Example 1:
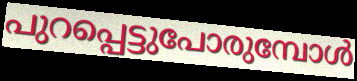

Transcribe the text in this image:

പുറപ്പെട്ടുപോരുമ്പോൾ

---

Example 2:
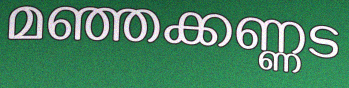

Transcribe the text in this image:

മഞ്ഞക്കണ്ണട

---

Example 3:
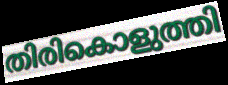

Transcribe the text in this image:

തിരികൊളുത്തി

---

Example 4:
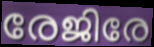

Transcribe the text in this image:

രേജിരേ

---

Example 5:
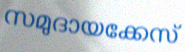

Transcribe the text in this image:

സമുദായക്കേസ്